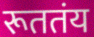
रूततंय